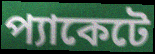
প্যাকেটে